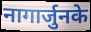
नागार्जुनके